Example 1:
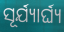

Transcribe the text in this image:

ସୂର୍ଯ୍ୟାର୍ଘ୍ୟ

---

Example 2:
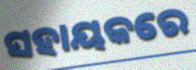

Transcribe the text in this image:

ସହାୟକରେ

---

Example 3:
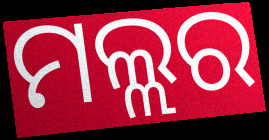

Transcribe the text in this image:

ମଲ୍ଲର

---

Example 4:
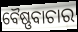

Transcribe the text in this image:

ବୈଷ୍ଣବାଚାର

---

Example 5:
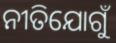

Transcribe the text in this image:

ନୀତିଯୋଗୁଁ